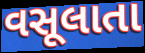
વસૂલાતા